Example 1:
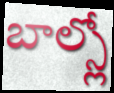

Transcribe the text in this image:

బాల్స్లో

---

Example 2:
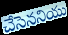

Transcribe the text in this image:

చేసెననియు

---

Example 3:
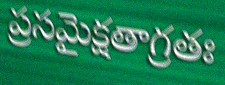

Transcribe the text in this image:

ప్రసమైక్షతాగ్రతః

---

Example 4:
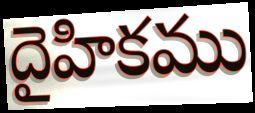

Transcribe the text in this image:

దైహికము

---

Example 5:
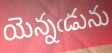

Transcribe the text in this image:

యెన్నఁడును